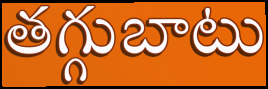
తగ్గుబాటు